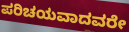
ಪರಿಚಯವಾದವರೇ